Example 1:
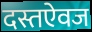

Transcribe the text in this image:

दस्तऐवज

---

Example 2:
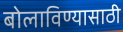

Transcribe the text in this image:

बोलाविण्यासाठी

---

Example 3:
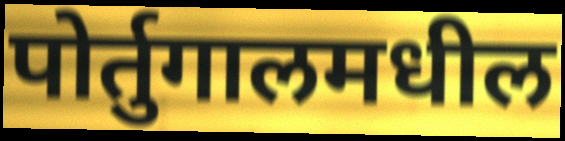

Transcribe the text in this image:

पोर्तुगालमधील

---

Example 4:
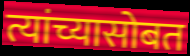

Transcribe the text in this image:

त्यांच्यासोबत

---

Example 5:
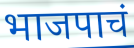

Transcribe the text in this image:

भाजपाचं